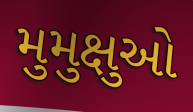
મુમુક્ષુઓ